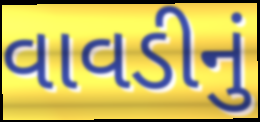
વાવડીનું